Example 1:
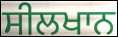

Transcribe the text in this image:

ਸੀਲਖਾਨ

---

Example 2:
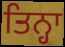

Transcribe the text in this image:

ਤਿਨ੍ਹ੍ਹਾ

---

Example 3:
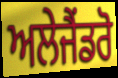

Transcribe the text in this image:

ਅਲੇਜੈਂਡਰੋ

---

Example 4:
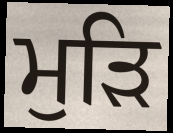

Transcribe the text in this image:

ਮੁੜਿ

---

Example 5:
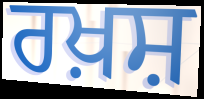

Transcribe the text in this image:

ਰਖ਼ਸ਼